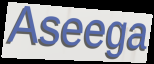
Aseega